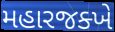
મહારજક્ખે